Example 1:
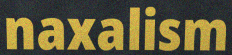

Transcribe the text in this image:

naxalism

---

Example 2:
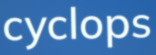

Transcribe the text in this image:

cyclops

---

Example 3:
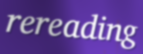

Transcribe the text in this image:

rereading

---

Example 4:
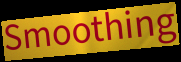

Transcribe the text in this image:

Smoothing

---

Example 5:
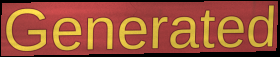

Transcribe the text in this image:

Generated